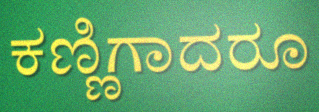
ಕಣ್ಣಿಗಾದರೂ